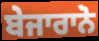
ਬੇਜਾਰਾਨੋ